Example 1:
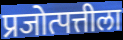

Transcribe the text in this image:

प्रजोत्पत्तीला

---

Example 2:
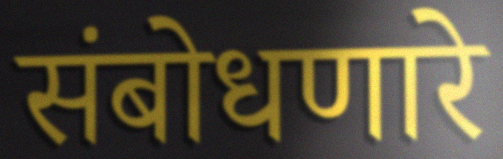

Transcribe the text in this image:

संबोधणारे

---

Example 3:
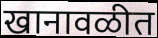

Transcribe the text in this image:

खानावळीत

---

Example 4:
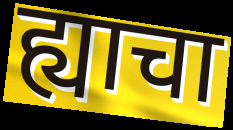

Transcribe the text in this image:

ह्याचा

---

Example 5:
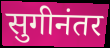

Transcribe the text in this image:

सुगीनंतर